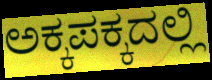
ಅಕ್ಕಪಕ್ಕದಲ್ಲಿ